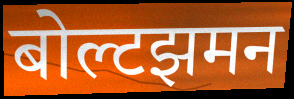
बोल्टझमन